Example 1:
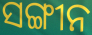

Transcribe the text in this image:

ସଙ୍ଗୀନ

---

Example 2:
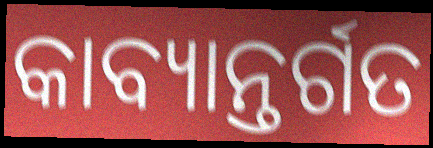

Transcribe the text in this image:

କାବ୍ଯାନ୍ତର୍ଗତ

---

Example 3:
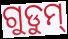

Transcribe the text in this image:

ଗୁଡୁମ୍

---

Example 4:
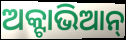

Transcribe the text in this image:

ଅକ୍ଟାଭିଆନ୍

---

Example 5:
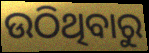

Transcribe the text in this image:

ଉଠିଥିବାରୁ